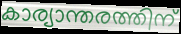
കാര്യാന്തരത്തിന്